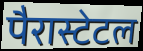
पैरास्टेटल